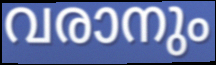
വരാനും